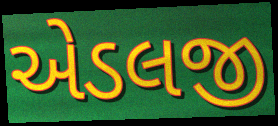
એડલજી